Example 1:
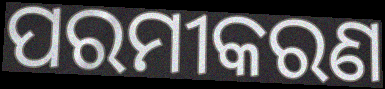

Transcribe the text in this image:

ପରମୀକରଣ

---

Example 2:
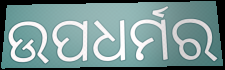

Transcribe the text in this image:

ଉପଧର୍ମର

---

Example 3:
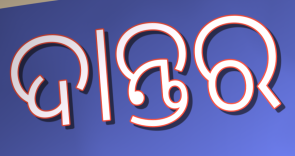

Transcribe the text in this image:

ଦାନ୍ତର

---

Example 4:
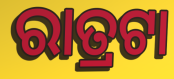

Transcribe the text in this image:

ରାତ୍ରଟା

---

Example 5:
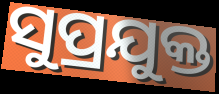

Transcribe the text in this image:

ସୁପ୍ରଯୁକ୍ତ